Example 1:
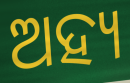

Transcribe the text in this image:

ଅହ୍ୟ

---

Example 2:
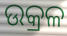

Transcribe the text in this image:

ଉକ୍ରଳ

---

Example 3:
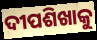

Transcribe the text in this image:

ଦୀପଶିଖାକୁ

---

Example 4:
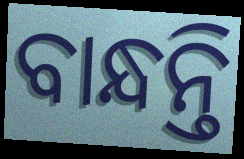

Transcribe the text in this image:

ବାନ୍ଧନ୍ତି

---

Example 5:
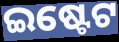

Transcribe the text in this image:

ଇଷ୍ଟେଟ